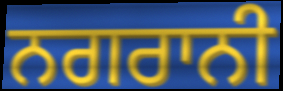
ਨਗਰਾਨੀ